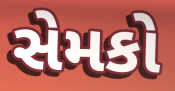
સેમકો